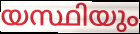
യസ്ഥിയും